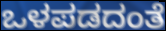
ಒಳಪಡದಂತೆ